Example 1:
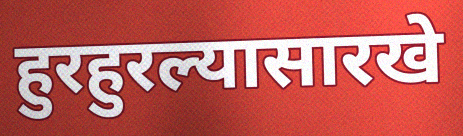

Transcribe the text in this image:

हुरहुरल्यासारखे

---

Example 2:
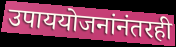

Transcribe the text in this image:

उपाययोजनांनंतरही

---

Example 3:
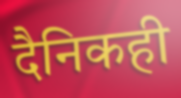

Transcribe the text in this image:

दैनिकही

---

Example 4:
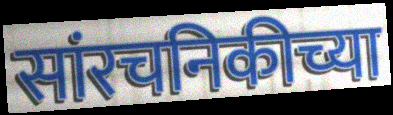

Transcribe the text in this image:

सांरचनिकीच्या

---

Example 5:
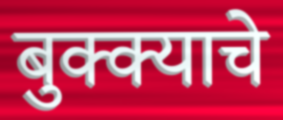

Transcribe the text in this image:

बुक्क्याचे